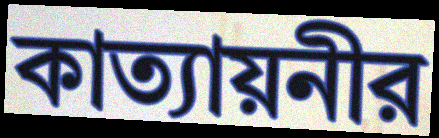
কাত্যায়নীর